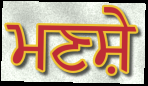
ਮਣਸ਼ੇ